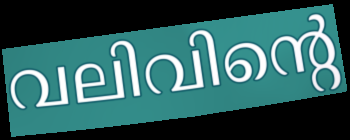
വലിവിന്റെ